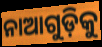
ନାଆଗୁଡ଼ିକୁ